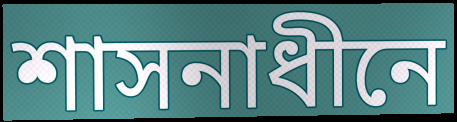
শাসনাধীনে